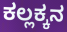
ಕಲ್ಲಕ್ಕನ